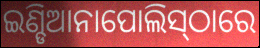
ଇଣ୍ଡିଆନାପୋଲିସ୍‍ଠାରେ